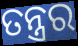
ତନ୍ତ୍ରର